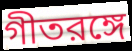
গীতরঙ্গে